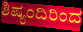
ಶಿಷ್ಯಂದಿರಿಂದ